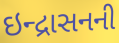
ઇન્દ્રાસનની